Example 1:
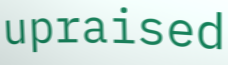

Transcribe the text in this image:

upraised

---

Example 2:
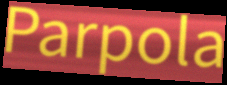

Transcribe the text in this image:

Parpola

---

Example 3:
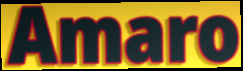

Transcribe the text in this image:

Amaro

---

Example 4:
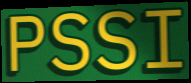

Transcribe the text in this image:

PSSI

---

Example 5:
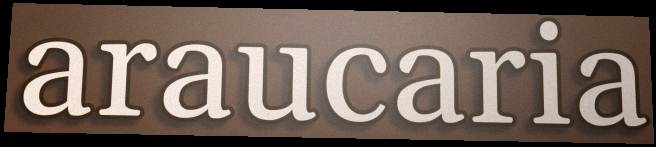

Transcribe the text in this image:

araucaria